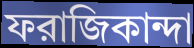
ফরাজিকান্দা